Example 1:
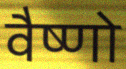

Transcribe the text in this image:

वैष्‍णो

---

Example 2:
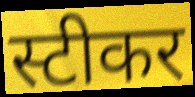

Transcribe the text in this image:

स्टीकर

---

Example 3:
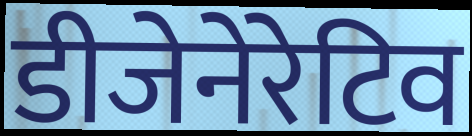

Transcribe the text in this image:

डीजेनेरेटिव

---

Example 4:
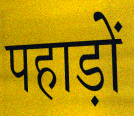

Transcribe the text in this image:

पहाड़ों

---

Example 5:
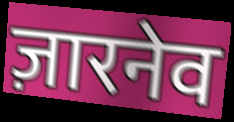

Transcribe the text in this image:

ज़ारनेव